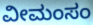
ವೀಮಂಸಂ